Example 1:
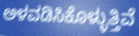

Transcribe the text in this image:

ಅಳವಡಿಸಿಕೊಳ್ಳುತ್ತಿವೆ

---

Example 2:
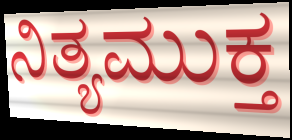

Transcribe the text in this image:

ನಿತ್ಯಮುಕ್ತ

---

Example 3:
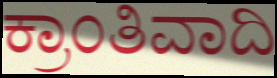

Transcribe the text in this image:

ಕ್ರಾಂತಿವಾದಿ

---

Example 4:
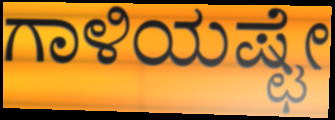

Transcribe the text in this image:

ಗಾಳಿಯಷ್ಟೇ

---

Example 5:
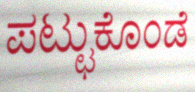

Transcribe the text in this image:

ಪಟ್ಟುಕೊಂಡೆ